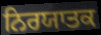
ਨਿਰਯਾਤਕ